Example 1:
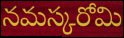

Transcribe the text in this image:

నమస్కరోమి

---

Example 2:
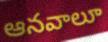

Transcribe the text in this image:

ఆనవాలూ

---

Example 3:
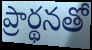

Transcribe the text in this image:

ప్రార్థనతో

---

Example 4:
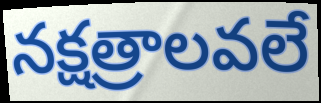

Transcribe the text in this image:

నక్షత్రాలవలే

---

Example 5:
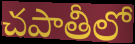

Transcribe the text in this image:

చపాతీలో